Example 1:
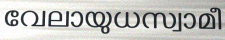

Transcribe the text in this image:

വേലായുധസ്വാമീ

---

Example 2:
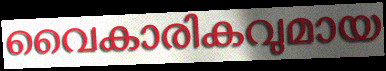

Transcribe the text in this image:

വൈകാരികവുമായ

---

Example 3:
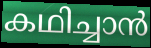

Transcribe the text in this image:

കഥിച്ചാൻ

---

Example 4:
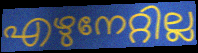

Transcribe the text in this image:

എഴുനേറ്റില്ല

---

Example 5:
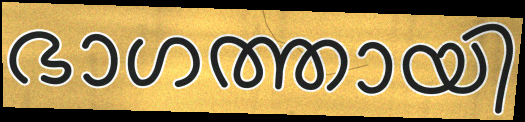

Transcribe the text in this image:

ഭാഗത്തായി